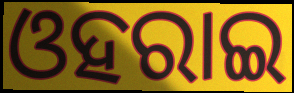
ଓହରାଇ